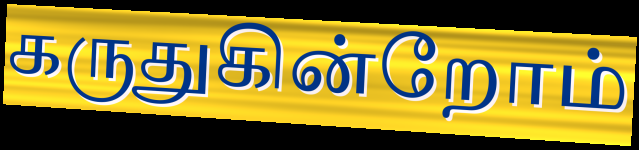
கருதுகின்றோம்